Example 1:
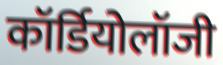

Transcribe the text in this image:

कॉर्डियोलॉजी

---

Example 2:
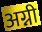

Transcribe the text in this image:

अग्नी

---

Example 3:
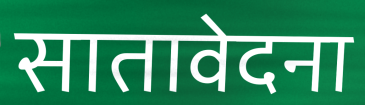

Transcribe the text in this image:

सातावेदना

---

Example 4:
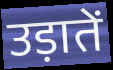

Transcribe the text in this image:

उड़ातें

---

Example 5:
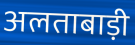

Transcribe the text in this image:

अलताबाड़ी